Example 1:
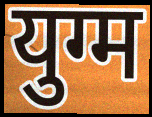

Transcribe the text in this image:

युग्म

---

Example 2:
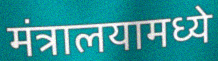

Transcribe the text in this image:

मंत्रालयामध्ये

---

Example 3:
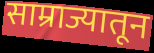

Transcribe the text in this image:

साम्राज्यातून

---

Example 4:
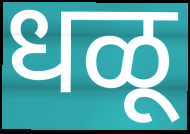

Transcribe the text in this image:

धळू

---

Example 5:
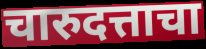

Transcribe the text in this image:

चारुदत्ताचा